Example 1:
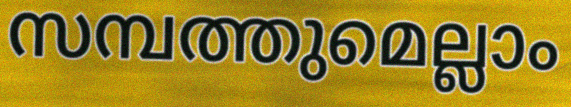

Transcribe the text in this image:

സമ്പത്തുമെല്ലാം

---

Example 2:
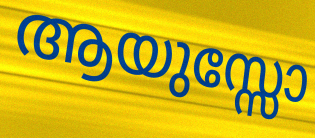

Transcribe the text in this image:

ആയുസ്സോ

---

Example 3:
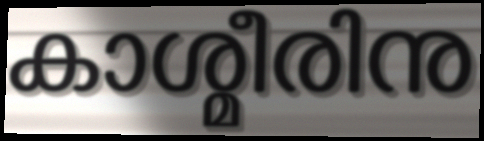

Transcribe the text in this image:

കാശ്മീരിനു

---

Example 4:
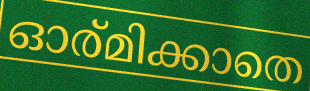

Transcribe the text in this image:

ഓര്മിക്കാതെ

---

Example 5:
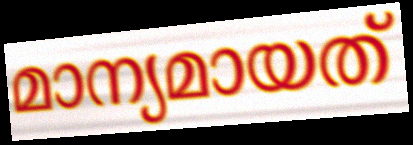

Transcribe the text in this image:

മാന്യമായത്